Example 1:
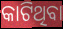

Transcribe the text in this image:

କାଟିଥିବା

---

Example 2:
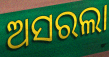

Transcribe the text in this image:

ଅସରଲା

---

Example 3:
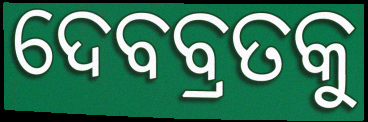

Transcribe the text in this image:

ଦେବବ୍ରତକୁ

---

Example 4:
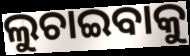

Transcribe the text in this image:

ଲୁଚାଇବାକୁ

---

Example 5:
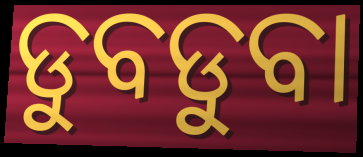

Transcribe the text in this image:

ଡୁବଡୁବା